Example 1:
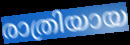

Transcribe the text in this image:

രാത്രിയായ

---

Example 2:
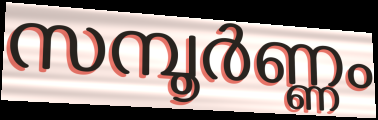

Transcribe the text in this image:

സമ്പൂർണ്ണം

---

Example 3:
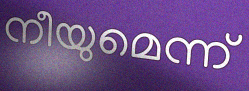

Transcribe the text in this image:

നീയുമെന്ന്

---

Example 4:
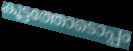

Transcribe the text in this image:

കൂട്ടത്തോടൊപ്പം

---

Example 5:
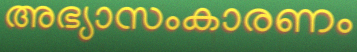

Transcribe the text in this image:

അഭ്യാസംകാരണം